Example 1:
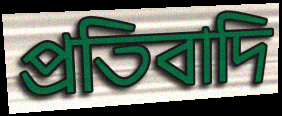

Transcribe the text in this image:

প্রতিবাদি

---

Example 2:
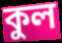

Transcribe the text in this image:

কুল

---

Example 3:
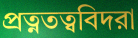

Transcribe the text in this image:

প্রত্নতত্ববিদরা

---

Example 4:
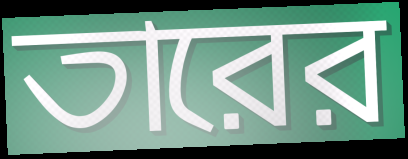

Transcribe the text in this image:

তারের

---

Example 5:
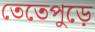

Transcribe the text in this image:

তেতেপুড়ে